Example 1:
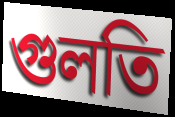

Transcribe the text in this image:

গুলতি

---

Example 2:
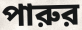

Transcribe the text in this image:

পারুর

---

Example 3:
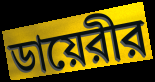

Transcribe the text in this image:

ডায়েরীর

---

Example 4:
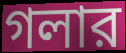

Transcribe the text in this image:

গলার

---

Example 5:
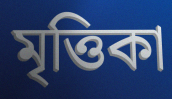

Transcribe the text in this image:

মৃত্তিকা